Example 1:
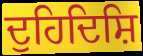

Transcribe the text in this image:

ਦੁਹਿਦਿਸ਼ਿ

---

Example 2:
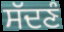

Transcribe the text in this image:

ਸੱਦਣੰ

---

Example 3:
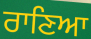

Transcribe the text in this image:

ਰਾਣਿਆ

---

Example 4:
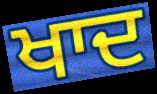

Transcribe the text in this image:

ਖਾਦ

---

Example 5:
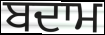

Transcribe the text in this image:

ਬਦਾਮ